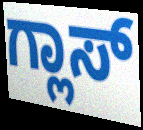
ಗ್ಲಾಸ್